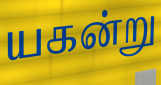
யகன்று